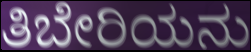
ತಿಬೇರಿಯನು